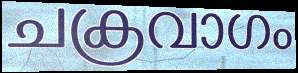
ചക്രവാഗം